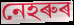
নেহৰুৰ